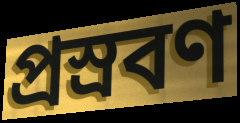
প্রস্রবণ